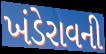
ખંડેરાવની